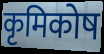
कृमिकोष